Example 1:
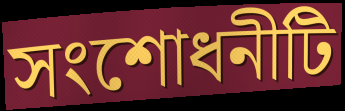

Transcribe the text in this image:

সংশোধনীটি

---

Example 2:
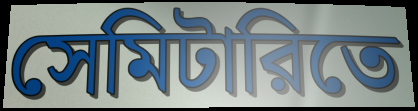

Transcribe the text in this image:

সেমিটারিতে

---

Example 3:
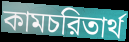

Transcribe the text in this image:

কামচরিতার্থ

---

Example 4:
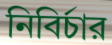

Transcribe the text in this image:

নিবির্চার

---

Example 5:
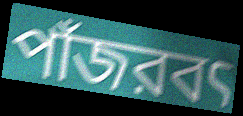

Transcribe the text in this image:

পাঁজরবৎ